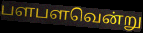
பளபளவென்று